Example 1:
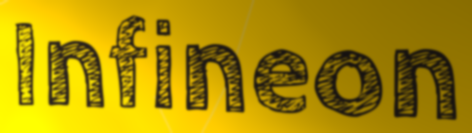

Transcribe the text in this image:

Infineon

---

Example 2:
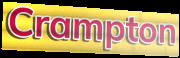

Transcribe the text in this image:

Crampton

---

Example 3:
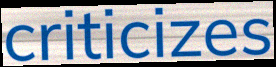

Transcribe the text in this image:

criticizes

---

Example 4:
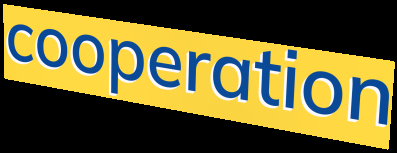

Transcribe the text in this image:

cooperation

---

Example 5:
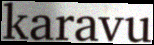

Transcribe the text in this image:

karavu